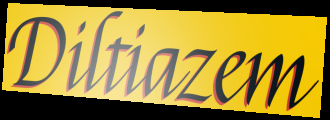
Diltiazem